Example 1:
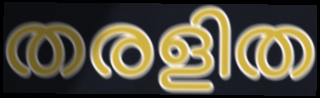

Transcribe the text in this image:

തരളിത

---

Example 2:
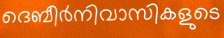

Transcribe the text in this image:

ദെബീർനിവാസികളുടെ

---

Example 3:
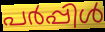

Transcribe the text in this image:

പർപ്പിൾ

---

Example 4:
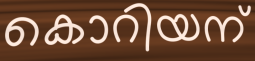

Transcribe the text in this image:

കൊറിയന്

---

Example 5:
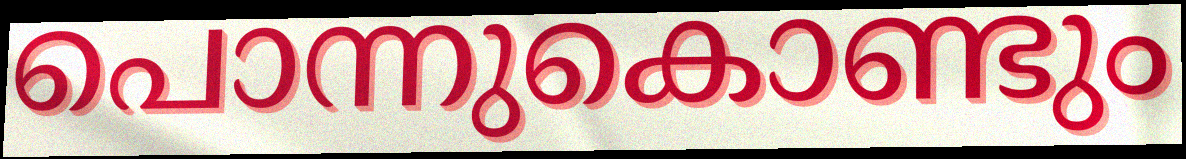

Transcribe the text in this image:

പൊന്നുകൊണ്ടും